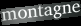
montagne